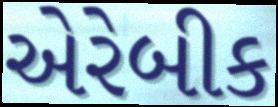
એરેબીક